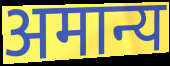
अमान्य